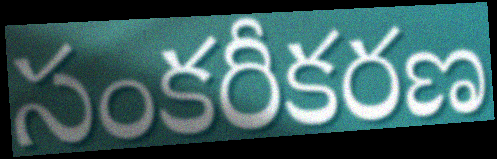
సంకరీకరణ